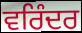
ਵਰਿੰਦਰ